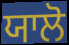
ਯਾਲੋ